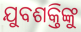
ଯୁବଶକ୍ତିଙ୍କୁ